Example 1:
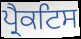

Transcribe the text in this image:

ਪ੍ਰੈਕਟਿਸ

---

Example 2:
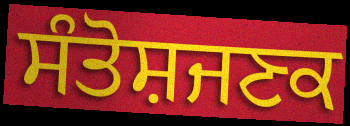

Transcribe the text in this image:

ਸੰਤੋਸ਼ਜਣਕ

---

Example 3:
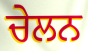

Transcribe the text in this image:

ਚੇਲਨ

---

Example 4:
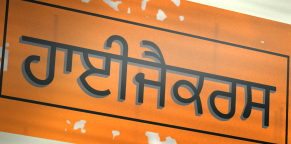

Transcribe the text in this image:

ਹਾਈਜੈਕਰਸ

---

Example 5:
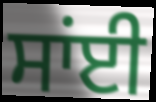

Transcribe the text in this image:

ਸਾਂਈ